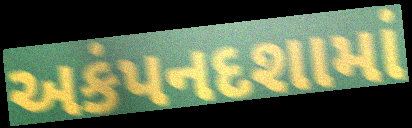
અકંપનદશામાં